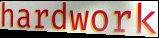
hardwork